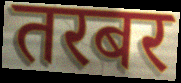
तरबर